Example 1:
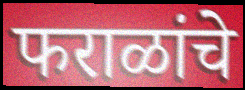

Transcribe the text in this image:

फराळांचे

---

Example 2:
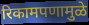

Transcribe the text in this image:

रिकामपणामुळे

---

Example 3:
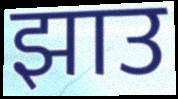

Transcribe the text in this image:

झाउ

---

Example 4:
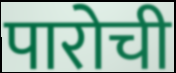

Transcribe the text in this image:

पारोची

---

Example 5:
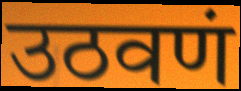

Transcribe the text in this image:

उठवणं